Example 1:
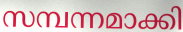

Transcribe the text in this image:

സമ്പന്നമാക്കി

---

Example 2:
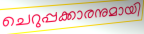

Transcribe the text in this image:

ചെറുപ്പക്കാരനുമായി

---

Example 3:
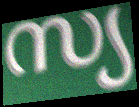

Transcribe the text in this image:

സ്യ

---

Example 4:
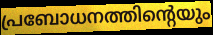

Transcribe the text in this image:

പ്രബോധനത്തിന്റെയും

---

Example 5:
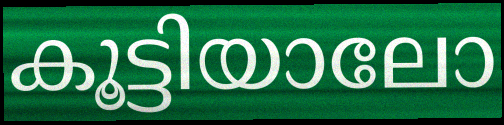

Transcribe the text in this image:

കൂട്ടിയാലോ